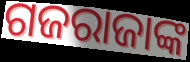
ଗଜରାଜାଙ୍କ